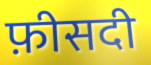
फ़ीसदी